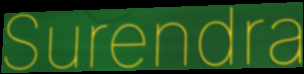
Surendra